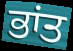
ਭਾਂਤ